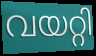
വയറ്റി